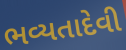
ભવ્યતાદેવી